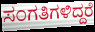
ಸಂಗತಿಗಳಿದ್ದರೆ